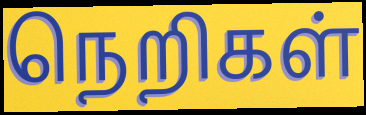
நெறிகள்